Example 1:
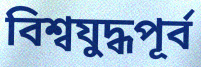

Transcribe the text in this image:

বিশ্বযুদ্ধপূর্ব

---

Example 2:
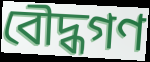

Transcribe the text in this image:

বৌদ্ধগণ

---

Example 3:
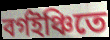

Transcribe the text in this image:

বর্গইঞ্চিতে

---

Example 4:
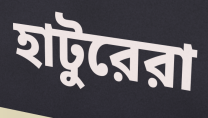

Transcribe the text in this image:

হাটুরেরা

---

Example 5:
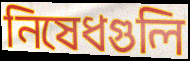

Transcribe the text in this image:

নিষেধগুলি